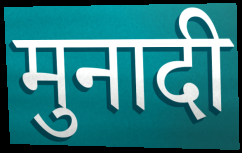
मुनादी